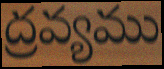
ద్రవ్యము